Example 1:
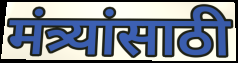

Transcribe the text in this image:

मंत्र्यांसाठी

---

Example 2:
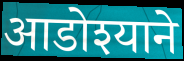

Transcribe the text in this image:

आडोश्याने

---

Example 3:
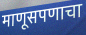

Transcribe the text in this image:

माणूसपणाचा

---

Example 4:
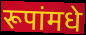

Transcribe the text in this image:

रूपांमधे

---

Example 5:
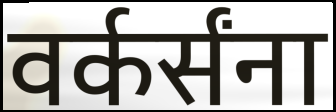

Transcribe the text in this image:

वर्कर्संना